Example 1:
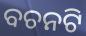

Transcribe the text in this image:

ବଚନଟି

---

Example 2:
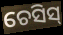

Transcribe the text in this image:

ଚେସିସ୍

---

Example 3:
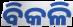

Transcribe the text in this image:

ବିକଳି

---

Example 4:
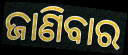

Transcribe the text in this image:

ଜାଣିବାର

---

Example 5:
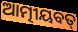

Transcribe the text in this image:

ଆତ୍ମୀୟବତ୍